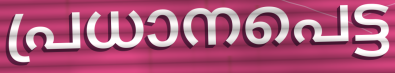
പ്രധാനപെട്ട